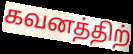
கவனத்திற்